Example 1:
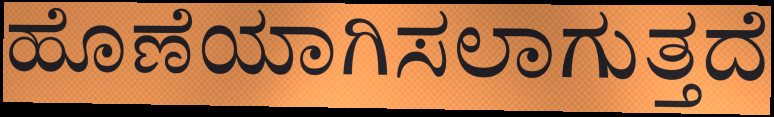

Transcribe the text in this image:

ಹೊಣೆಯಾಗಿಸಲಾಗುತ್ತದೆ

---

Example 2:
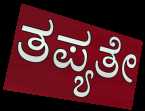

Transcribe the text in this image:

ತಪ್ಯತೇ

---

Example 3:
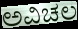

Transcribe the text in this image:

ಅವಿಚಲ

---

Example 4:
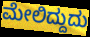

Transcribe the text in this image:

ಮೇಲಿದ್ದುದು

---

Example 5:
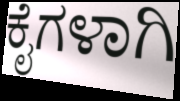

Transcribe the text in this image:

ಕೈಗಳಾಗಿ